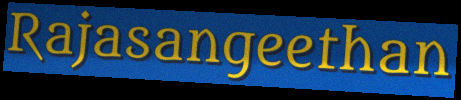
Rajasangeethan